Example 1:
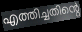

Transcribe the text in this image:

എത്തിച്ചതിന്റെ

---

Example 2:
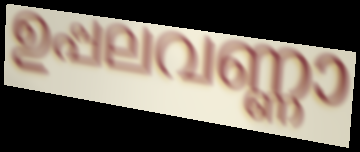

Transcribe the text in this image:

ഉപ്പലവണ്ണാ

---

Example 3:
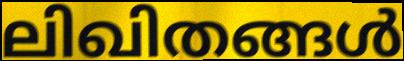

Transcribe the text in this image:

ലിഖിതങ്ങൾ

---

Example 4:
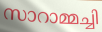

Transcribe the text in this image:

സാറാമ്മച്ചി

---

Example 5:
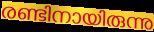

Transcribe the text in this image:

രണ്ടിനായിരുന്നു